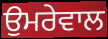
ਉਮਰੇਵਾਲ